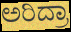
ಅರಿದ್ರಾ